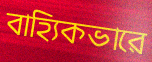
বাহ্যিকভাৱে